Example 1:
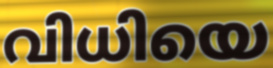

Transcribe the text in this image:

വിധിയെ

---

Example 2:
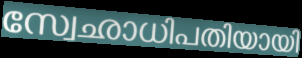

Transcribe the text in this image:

സ്വേഛാധിപതിയായി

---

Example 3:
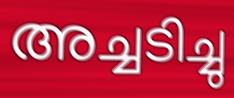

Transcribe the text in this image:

അച്ചടിച്ചു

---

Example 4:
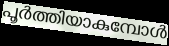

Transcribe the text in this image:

പൂർത്തിയാകുമ്പോൾ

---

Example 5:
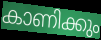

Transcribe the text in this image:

കാണിക്കും